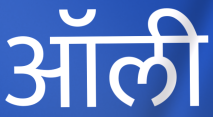
ऑली